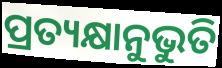
ପ୍ରତ୍ୟକ୍ଷାନୁଭୁତି